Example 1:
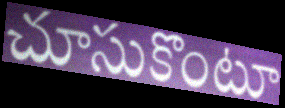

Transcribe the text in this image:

చూసుకొంటూ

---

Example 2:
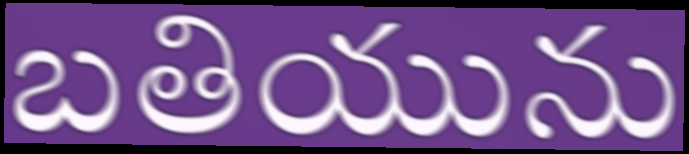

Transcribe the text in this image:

బతియును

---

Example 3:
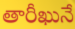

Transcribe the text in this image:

తారీఖునే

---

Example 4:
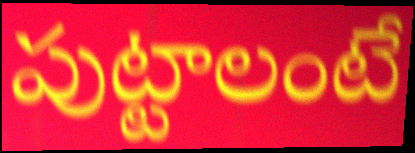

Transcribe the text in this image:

పుట్టాలంటే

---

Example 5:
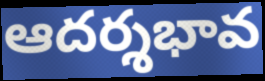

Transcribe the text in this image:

ఆదర్శభావ